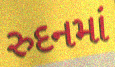
રુદનમાં